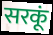
सरकूं